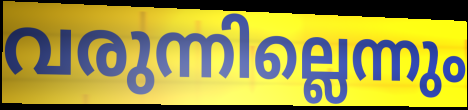
വരുന്നില്ലെന്നും